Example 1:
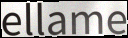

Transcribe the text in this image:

ellame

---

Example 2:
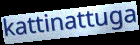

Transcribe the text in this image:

kattinattuga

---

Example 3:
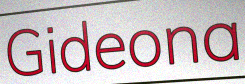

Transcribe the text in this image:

Gideona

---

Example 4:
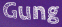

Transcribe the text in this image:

Gung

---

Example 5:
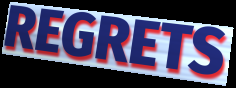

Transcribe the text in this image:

REGRETS